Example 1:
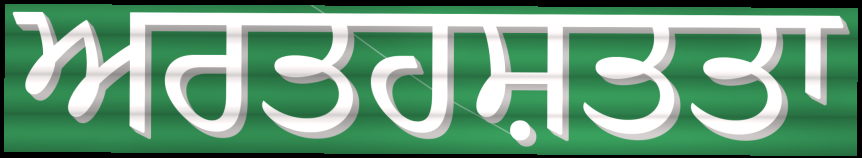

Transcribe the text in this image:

ਅਰਤਹਸ਼ਤਤਾ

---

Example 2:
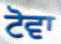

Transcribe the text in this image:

ਟੋਵਾ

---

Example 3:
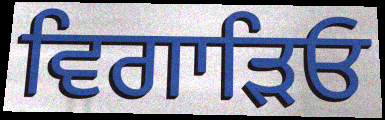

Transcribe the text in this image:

ਵਿਗਾੜਿਓ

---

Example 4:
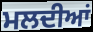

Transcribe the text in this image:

ਮਲਦੀਆਂ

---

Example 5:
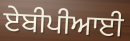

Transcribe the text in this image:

ਏਬੀਪੀਆਈ